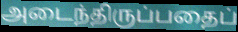
அடைந்திருப்பதைப்